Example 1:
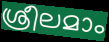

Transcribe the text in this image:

ശ്രീലമാം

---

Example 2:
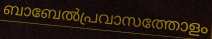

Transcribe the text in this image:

ബാബേൽപ്രവാസത്തോളം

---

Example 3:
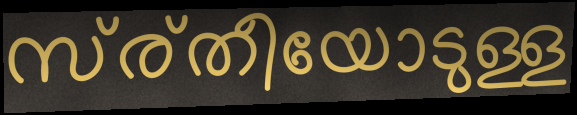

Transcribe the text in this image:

സ്ര്തീയോടുള്ള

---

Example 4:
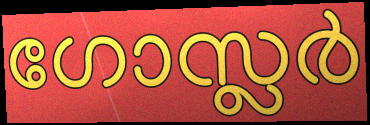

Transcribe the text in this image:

ഗോസ്ലർ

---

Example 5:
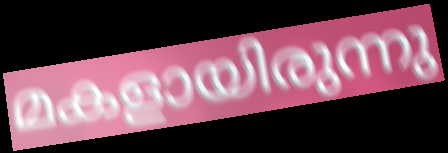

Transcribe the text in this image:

മകളായിരുന്നു